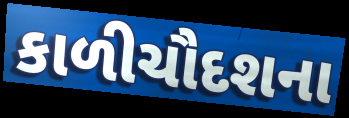
કાળીચૌદશના